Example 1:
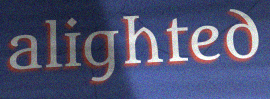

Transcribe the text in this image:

alighted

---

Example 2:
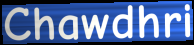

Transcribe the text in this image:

Chawdhri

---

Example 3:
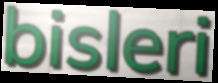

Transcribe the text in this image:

bisleri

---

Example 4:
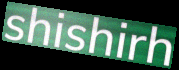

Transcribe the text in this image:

shishirh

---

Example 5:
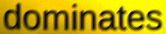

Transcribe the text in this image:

dominates